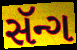
સૅન્ગ